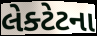
લેક્ટેટના